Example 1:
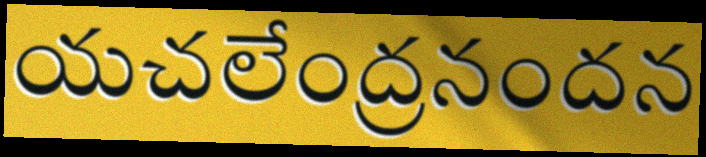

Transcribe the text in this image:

యచలేంద్రనందన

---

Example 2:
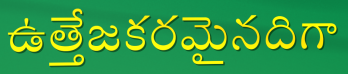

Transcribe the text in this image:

ఉత్తేజకరమైనదిగా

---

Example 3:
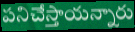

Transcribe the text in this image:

పనిచేస్తాయన్నారు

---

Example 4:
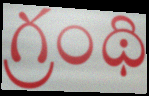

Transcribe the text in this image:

గ్రంథి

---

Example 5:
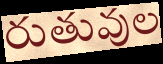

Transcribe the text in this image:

రుతువుల